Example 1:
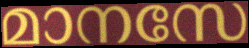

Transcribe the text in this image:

മാനസേ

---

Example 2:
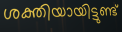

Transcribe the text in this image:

ശക്തിയായിട്ടുണ്ട്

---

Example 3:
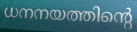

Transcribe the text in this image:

ധനനയത്തിന്റെ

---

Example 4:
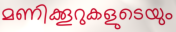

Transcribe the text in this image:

മണിക്കൂറുകളുടെയും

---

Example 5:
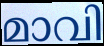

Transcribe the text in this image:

മാവി